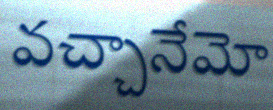
వచ్చానేమో